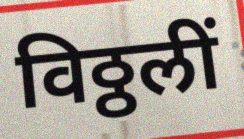
विठ्ठलीं